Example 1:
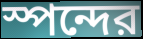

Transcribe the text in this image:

স্পন্দের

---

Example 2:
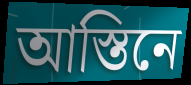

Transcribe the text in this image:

আস্তিনে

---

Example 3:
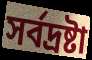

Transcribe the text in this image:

সর্বদ্রষ্টা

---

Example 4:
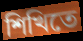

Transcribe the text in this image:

শিখিতে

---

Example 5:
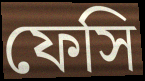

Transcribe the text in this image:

ফেসি